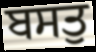
ਬਸਤੁ